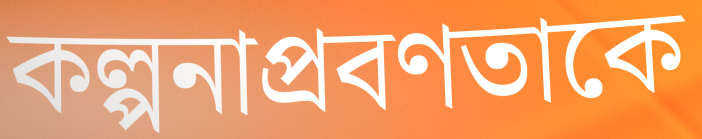
কল্পনাপ্রবণতাকে